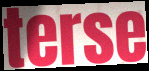
terse